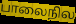
பாலைநில